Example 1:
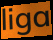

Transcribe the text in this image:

liga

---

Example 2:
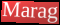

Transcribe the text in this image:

Marag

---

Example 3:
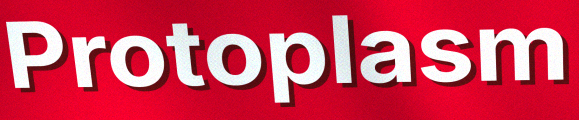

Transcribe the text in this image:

Protoplasm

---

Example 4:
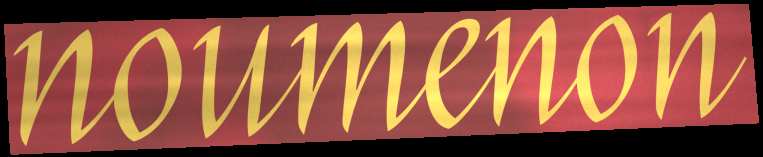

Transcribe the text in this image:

noumenon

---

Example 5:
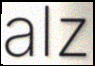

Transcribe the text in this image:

alz